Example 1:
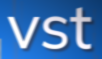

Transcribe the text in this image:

vst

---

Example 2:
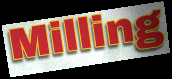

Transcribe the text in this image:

Milling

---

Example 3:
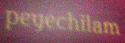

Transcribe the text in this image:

peyechilam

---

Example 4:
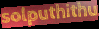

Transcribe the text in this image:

solputhithu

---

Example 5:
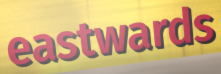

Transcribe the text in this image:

eastwards